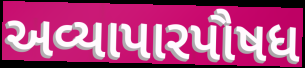
અવ્યાપારપૌષધ